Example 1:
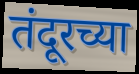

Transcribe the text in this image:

तंदूरच्या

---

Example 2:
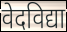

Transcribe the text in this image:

वेदविद्या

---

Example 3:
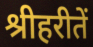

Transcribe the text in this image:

श्रीहरीतें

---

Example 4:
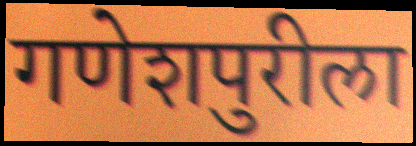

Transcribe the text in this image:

गणेशपुरीला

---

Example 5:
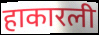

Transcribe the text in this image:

हाकारली